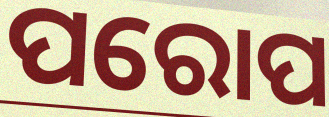
ପରୋପ